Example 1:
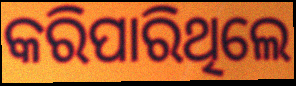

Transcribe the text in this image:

କରିପାରିଥିଲେ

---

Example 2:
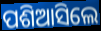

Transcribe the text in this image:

ପଶିଆସିଲେ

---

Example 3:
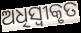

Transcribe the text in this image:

ଅଧିସ୍ୱୀକୃତ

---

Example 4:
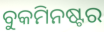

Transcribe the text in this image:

ବୁକମିନଷ୍ଟର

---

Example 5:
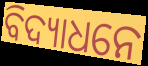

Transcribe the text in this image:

ବିଦ୍ୟାଧନେ